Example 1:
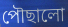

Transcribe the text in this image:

পৌছালো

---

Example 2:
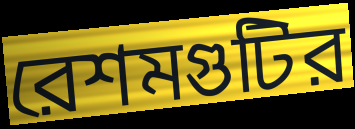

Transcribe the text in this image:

রেশমগুটির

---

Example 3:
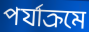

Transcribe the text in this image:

পর্যাক্রমে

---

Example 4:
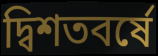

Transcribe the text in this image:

দ্বিশতবর্ষে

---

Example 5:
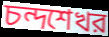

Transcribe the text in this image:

চন্দশেখর